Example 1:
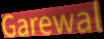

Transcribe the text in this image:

Garewal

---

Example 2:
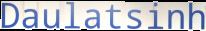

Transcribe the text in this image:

Daulatsinh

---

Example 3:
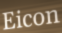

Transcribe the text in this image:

Eicon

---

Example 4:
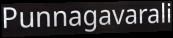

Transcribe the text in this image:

Punnagavarali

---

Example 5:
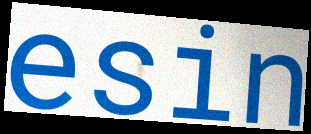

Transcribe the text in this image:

esin